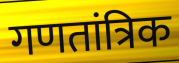
गणतांत्रिक